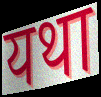
यथा